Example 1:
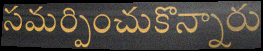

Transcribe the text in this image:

సమర్పించుకొన్నారు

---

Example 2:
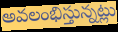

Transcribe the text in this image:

అవలంభిస్తున్నట్లు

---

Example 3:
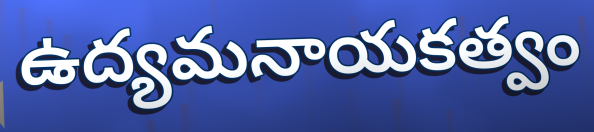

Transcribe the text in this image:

ఉద్యమనాయకత్వం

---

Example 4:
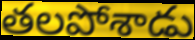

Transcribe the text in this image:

తలపోశాడు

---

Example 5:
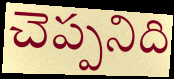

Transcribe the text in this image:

చెప్పనిది